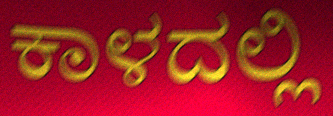
ಕಾಳದಲ್ಲಿ